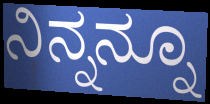
ನಿನ್ನನ್ನೂ